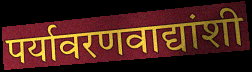
पर्यावरणवाद्यांशी